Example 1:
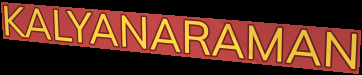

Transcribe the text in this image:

KALYANARAMAN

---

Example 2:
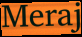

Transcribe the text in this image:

Meraj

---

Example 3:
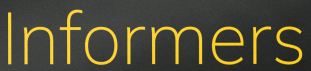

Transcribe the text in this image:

Informers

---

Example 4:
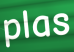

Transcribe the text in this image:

plas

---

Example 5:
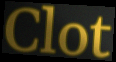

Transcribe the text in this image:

Clot